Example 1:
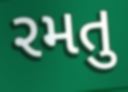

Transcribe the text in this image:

રમતુ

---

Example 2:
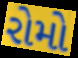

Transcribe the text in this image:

રોમો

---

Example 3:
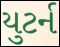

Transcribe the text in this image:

યુટર્ન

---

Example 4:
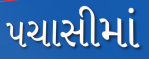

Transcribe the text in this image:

પચાસીમાં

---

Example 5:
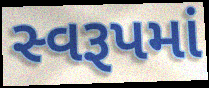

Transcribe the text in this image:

સ્વરૂપમાં